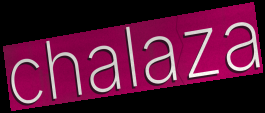
chalaza